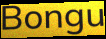
Bongu